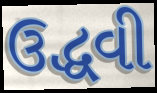
ઉદ્ધવી